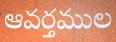
ఆవర్తముల